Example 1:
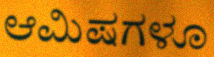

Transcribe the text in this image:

ಆಮಿಷಗಳೂ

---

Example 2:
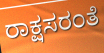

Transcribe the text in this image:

ರಾಕ್ಷಸರಂತೆ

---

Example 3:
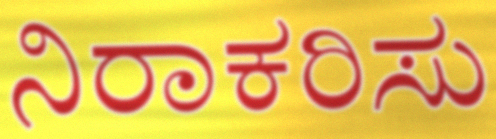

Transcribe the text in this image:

ನಿರಾಕರಿಸು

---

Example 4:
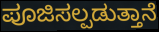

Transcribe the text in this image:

ಪೂಜಿಸಲ್ಪಡುತ್ತಾನೆ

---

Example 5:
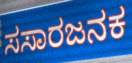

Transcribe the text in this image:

ಸಸಾರಜನಕ